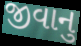
જીવાનુ